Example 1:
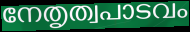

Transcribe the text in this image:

നേതൃത്വപാടവം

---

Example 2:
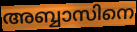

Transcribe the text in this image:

അബ്ബാസിനെ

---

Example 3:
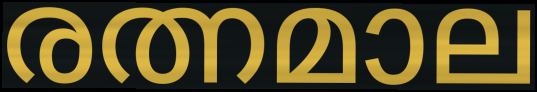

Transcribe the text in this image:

രത്നമാല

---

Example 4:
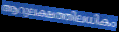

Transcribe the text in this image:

ആറുലക്ഷത്തിലധികം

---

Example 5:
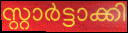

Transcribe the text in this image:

സ്റ്റാർട്ടാക്കി